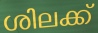
ശിലക്ക്